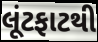
લૂંટફાટથી